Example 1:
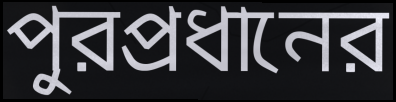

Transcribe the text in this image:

পুরপ্রধানের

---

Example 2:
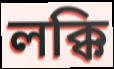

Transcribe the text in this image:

লক্কি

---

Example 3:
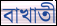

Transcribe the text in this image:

বাখাতী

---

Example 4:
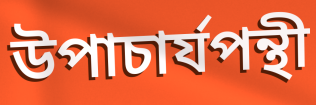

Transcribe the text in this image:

উপাচার্যপন্থী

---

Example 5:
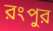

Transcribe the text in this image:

রংপুর